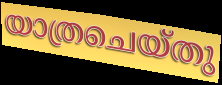
യാത്രചെയ്തു